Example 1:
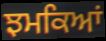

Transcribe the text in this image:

ਝਮਕਿਆਂ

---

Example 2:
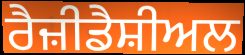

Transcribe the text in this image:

ਰੈਜ਼ੀਡੈਸ਼ੀਅਲ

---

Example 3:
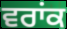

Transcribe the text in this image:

ਵਰਾਂਕ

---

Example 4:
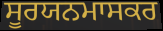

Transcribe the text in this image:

ਸੂਰਯਨਮਾਸਕਰ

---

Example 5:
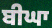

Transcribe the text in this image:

ਬੀਘਾ